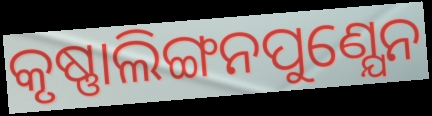
କୃଷ୍ଣାଲିଙ୍ଗନପୁଣ୍ଯେନ